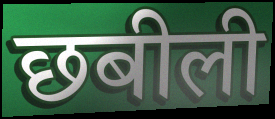
छबीली